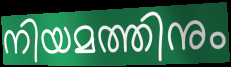
നിയമത്തിനും